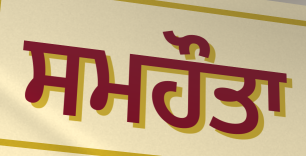
ਸਮਹੌਤਾ